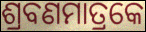
ଶ୍ରବଣମାତ୍ରକେ